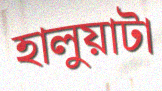
হালুয়াটা